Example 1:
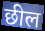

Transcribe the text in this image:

छील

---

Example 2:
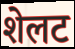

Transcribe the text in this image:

शेलट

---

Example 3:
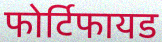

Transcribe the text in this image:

फोर्टिफायड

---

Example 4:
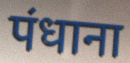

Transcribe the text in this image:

पंधाना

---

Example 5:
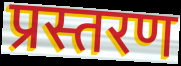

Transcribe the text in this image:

प्रस्तरण